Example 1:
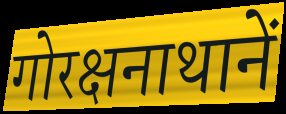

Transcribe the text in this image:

गोरक्षनाथानें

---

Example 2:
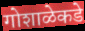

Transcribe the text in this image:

गोशाळेकडे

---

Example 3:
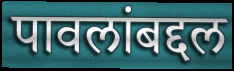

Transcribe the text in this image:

पावलांबद्दल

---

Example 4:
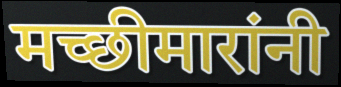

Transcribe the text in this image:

मच्छीमारांनी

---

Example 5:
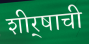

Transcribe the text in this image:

शीर्षाची